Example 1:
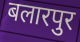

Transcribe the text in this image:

बलारपुर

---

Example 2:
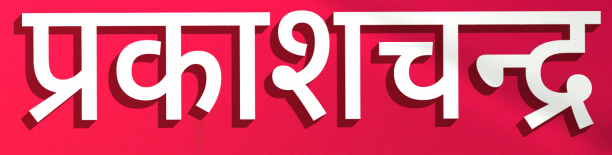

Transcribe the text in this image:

प्रकाशचन्द्र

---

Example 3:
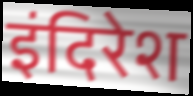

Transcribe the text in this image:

इंदिरेश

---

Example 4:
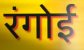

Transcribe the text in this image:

रंगोई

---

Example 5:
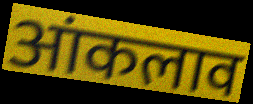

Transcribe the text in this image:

आंकलाव